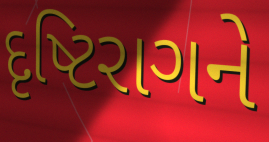
દૃષ્ટિરાગને